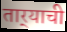
तार्याची